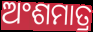
ଅଂଶମାତ୍ର